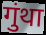
गुंथा